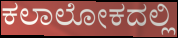
ಕಲಾಲೋಕದಲ್ಲಿ